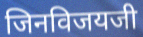
जिनविजयजी